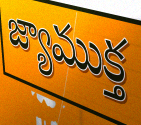
జ్యాముక్త